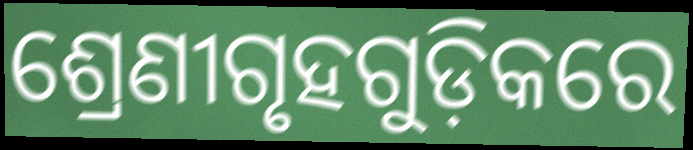
ଶ୍ରେଣୀଗୃହଗୁଡ଼ିକରେ